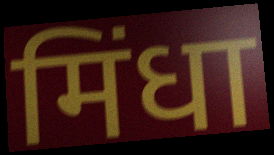
मिंधा